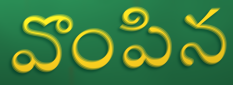
వొంపిన